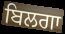
ਬਿਲਗਾ